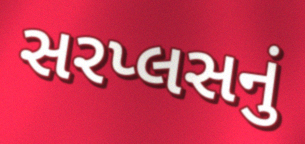
સરપ્લસનું